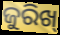
ଜୁରିଖ୍